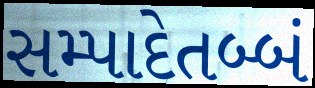
સમ્પાદેતબ્બં